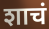
शाचं